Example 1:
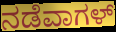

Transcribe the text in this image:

ನಡೆವಾಗಳ್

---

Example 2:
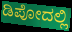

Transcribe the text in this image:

ಡಿಪೋದಲ್ಲಿ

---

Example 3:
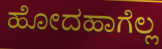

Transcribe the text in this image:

ಹೋದಹಾಗೆಲ್ಲ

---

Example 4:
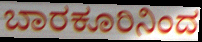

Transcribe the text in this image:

ಬಾರಕೂರಿನಿಂದ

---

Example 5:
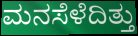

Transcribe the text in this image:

ಮನಸೆಳೆದಿತ್ತು